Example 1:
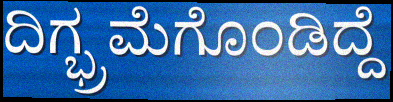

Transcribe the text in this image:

ದಿಗ್ಭ್ರಮೆಗೊಂಡಿದ್ದೆ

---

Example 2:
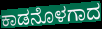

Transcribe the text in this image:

ಕಾಡನೊಳಗಾದ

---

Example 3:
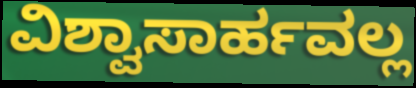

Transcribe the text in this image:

ವಿಶ್ವಾಸಾರ್ಹವಲ್ಲ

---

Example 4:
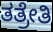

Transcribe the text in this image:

ತತ್ರೇತಿ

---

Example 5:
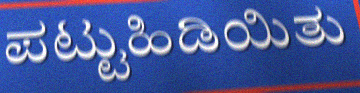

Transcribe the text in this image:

ಪಟ್ಟುಹಿಡಿಯಿತು